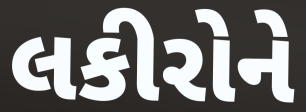
લકીરોને